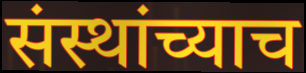
संस्थांच्याच